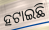
ହଟାଇଛି